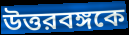
উত্তরবঙ্গকে